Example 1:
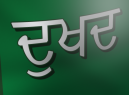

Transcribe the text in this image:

ਦੁਖਦ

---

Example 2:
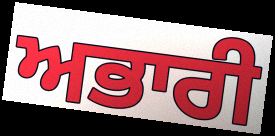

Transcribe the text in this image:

ਅਭਾਰੀ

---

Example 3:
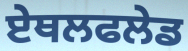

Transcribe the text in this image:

ਏਥਲਫਲੇਡ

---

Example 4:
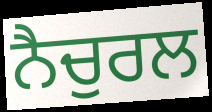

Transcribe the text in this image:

ਨੈਚੁਰਲ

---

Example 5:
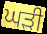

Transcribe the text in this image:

ਘਡ਼ੀ